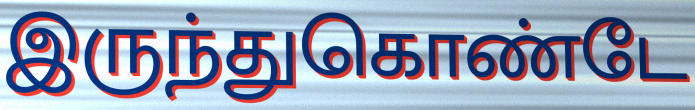
இருந்துகொண்டே